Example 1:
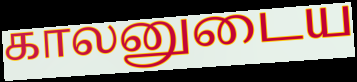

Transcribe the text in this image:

காலனுடைய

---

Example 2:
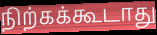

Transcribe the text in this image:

நிற்கக்கூடாது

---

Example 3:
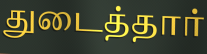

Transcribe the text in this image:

துடைத்தார்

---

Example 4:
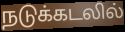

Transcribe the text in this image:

நடுக்கடலில்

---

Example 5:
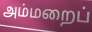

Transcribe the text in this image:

அம்மறைப்